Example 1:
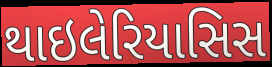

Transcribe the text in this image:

થાઇલેરિયાસિસ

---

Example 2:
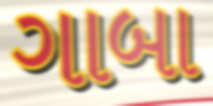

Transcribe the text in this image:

ગાબા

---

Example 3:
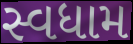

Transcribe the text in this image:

સ્વધામ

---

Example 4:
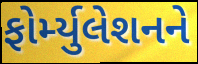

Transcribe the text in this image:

ફોર્મ્યુલેશનને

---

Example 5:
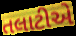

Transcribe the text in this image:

તલાટીએ